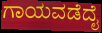
ಗಾಯವಡೆದೈ